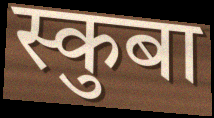
स्कुबा